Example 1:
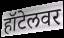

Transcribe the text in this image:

हॉटेलवर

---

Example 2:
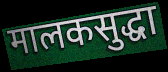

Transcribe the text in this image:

मालकसुद्धा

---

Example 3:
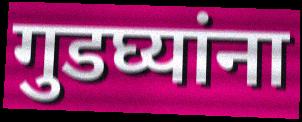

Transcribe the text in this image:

गुडघ्यांना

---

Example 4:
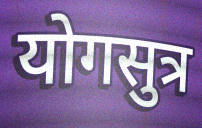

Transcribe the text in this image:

योगसुत्र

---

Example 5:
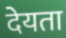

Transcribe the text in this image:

देयता